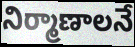
నిర్మాణాలనే